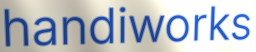
handiworks